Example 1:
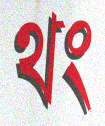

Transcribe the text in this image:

থং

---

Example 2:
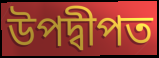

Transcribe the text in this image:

উপদ্বীপত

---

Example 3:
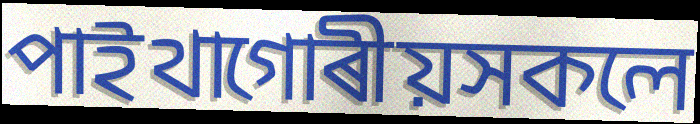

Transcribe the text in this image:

পাইথাগোৰীয়সকলে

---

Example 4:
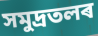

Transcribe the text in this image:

সমুদ্ৰতলৰ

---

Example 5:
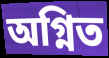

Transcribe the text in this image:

অগ্নিত